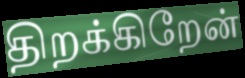
திறக்கிறேன்